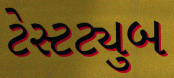
ટેસ્ટટ્યુબ